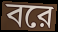
বরে